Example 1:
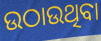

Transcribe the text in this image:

ଉଠାଉଥିବା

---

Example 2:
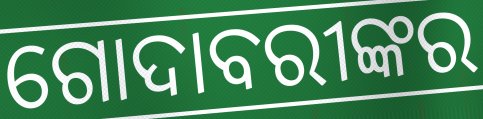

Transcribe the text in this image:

ଗୋଦାବରୀଙ୍କର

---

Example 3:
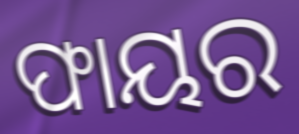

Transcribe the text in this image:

ଫାୟର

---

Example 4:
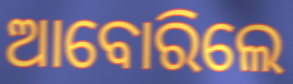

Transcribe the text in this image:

ଆବୋରିଲେ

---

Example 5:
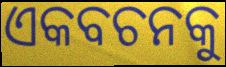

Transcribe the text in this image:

ଏକବଚନକୁ